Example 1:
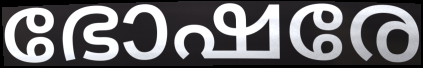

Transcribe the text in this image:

ഭോഷരേ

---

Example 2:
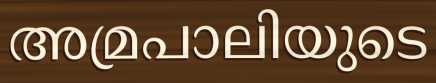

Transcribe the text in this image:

അമ്രപാലിയുടെ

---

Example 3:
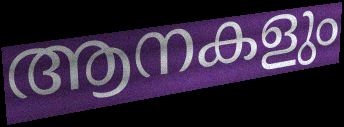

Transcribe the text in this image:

ആനകളും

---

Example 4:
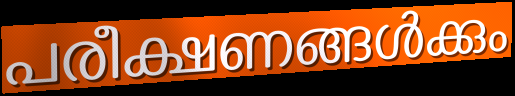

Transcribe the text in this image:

പരീക്ഷണങ്ങൾക്കും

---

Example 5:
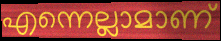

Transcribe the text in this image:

എന്നെല്ലാമാണ്